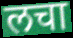
लचा